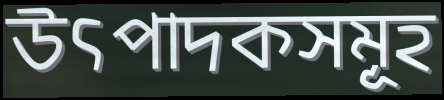
উৎপাদকসমূহ